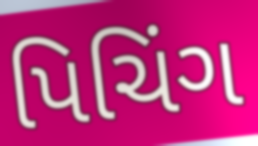
પિચિંગ